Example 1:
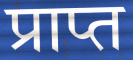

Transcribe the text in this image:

प्राप्‍त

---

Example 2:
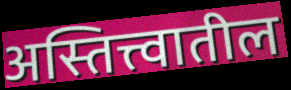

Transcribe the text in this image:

अस्तित्त्वातील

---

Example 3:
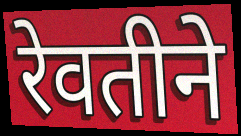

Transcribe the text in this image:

रेवतीने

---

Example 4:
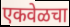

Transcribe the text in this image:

एकवेळचा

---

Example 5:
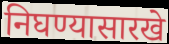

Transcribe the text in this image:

निघण्यासारखे